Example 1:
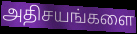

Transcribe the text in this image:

அதிசயங்களை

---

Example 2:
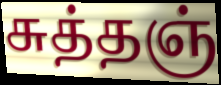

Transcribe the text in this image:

சுத்தஞ்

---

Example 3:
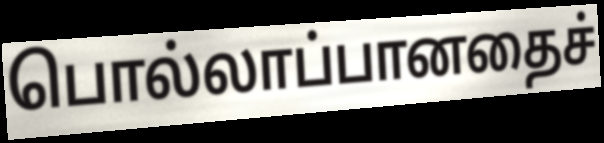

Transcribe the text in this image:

பொல்லாப்பானதைச்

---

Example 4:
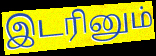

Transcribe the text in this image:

இடரினும்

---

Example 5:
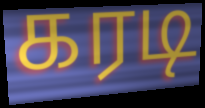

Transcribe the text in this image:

கரடி